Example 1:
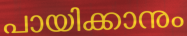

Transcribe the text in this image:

പായിക്കാനും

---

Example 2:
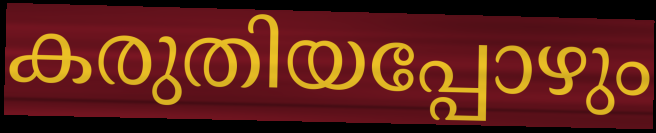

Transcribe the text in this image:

കരുതിയപ്പോഴും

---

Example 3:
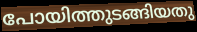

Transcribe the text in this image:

പോയിത്തുടങ്ങിയതു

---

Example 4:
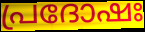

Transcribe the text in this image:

പ്രദോഷഃ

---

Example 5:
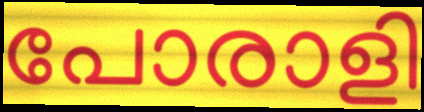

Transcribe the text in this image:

പോരാളി